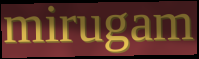
mirugam